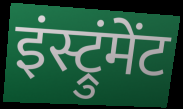
इंस्ट्रुंमेंट